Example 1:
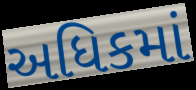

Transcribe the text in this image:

અધિકમાં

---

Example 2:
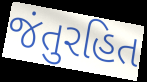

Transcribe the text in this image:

જંતુરહિત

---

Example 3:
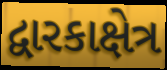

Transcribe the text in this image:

દ્વારકાક્ષેત્ર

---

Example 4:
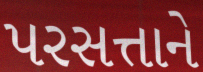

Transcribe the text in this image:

પરસત્તાને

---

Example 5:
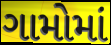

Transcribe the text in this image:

ગામોમાં